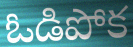
ఓడిపోక